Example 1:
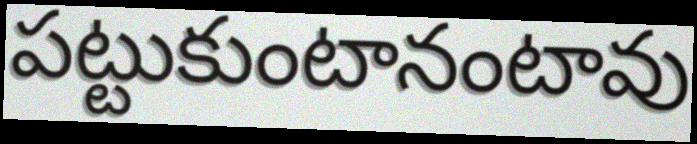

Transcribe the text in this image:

పట్టుకుంటానంటావు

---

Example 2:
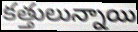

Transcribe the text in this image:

కత్తులున్నాయి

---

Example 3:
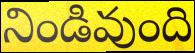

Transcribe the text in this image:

నిండివుంది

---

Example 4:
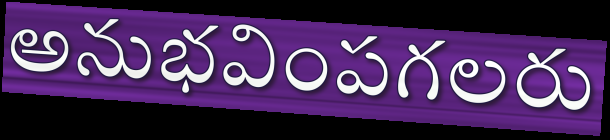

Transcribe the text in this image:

అనుభవింపగలరు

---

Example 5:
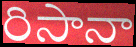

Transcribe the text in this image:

రిసానా